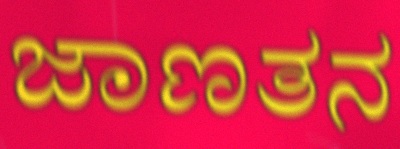
ಜಾಣತನ